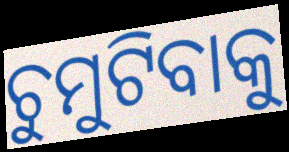
ଚୁମୁଟିବାକୁ